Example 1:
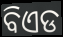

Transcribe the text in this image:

ବିଏଡ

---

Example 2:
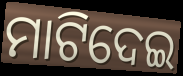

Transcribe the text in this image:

ମାଟିଦେଇ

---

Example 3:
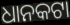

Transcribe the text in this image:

ଧାନକଟା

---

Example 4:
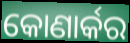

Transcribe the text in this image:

କୋଣାର୍କର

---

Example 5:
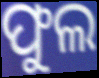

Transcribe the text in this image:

ଫୁଲ